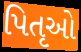
પિતૃઓ